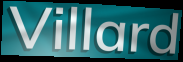
Villard